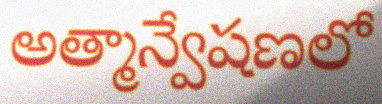
అత్మాన్వేషణలో